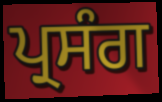
ਪ੍ਰਸੰਗ